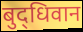
बुद्धिवान